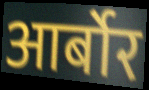
आर्बोर